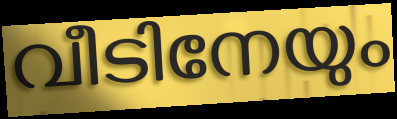
വീടിനേയും